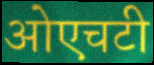
ओएचटी